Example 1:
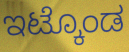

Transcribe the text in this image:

ಇಟ್ಕೊಂಡ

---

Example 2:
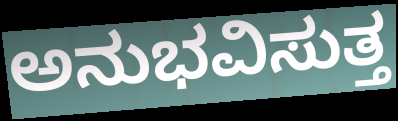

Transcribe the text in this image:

ಅನುಭವಿಸುತ್ತ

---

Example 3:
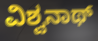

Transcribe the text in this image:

ವಿಶ್ವನಾಥ್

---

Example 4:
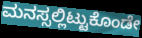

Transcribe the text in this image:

ಮನಸ್ಸಲ್ಲಿಟ್ಟುಕೊಂಡೇ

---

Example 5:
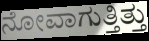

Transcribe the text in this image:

ನೋವಾಗುತ್ತಿತ್ತು